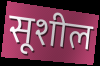
सूशील